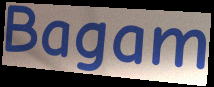
Bagam